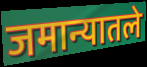
जमान्यातले